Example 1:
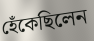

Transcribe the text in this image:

হেঁকেছিলেন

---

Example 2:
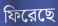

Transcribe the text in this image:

ফিরেছে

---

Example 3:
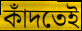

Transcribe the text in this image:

কাঁদতেই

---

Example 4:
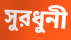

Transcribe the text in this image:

সুরধুনী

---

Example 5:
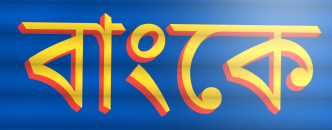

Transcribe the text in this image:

বাংকে